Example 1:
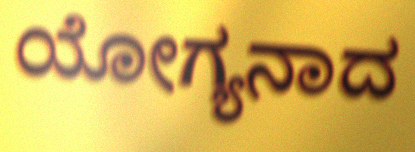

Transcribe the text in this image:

ಯೋಗ್ಯನಾದ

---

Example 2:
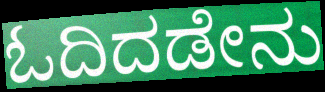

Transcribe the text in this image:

ಓದಿದಡೇನು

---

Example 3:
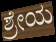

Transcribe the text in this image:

ಶ್ರೇಯ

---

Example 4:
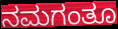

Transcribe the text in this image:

ನಮಗಂತೂ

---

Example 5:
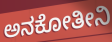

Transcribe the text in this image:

ಅನಕೋತೀನಿ